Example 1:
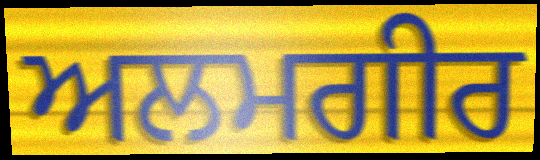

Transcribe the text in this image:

ਅਲਮਗੀਰ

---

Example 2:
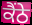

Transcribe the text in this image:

ਕੈਂਠੇ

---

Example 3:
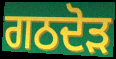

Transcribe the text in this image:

ਗਠਦੋੜ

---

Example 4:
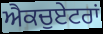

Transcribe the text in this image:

ਐਕਚੁਏਟਰਾਂ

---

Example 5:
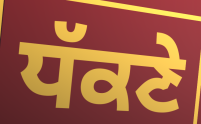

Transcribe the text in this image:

ਧੱਕਣੇ